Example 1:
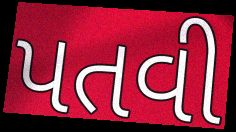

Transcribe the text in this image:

પતવી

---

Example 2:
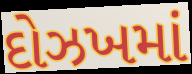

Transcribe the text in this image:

દોઝખમાં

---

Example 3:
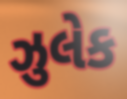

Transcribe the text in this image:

ઝુલેક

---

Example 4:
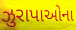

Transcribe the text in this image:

ઝુરાપાઓના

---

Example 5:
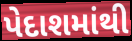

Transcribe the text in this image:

પેદાશમાંથી